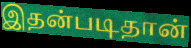
இதன்படிதான்